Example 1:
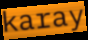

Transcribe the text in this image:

karay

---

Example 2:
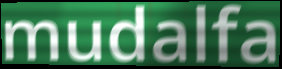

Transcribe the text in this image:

mudalfa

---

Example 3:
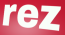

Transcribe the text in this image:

rez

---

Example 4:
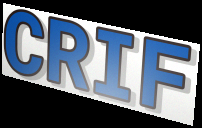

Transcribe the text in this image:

CRIF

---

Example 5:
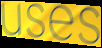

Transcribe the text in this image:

uses